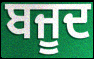
ਬਜੂਦ